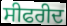
ਸੀਫਰੀਦ